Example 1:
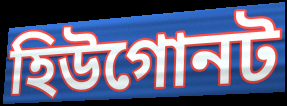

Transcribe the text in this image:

হিউগোনট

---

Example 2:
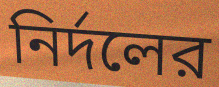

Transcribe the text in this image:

নির্দলের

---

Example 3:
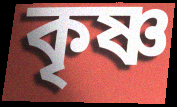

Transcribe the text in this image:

কৃষ্ণ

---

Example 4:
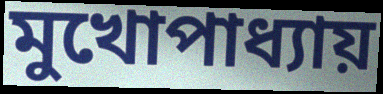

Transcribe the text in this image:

মুখোপাধ্যায়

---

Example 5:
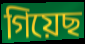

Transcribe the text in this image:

গিয়েছ